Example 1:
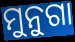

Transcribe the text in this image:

ମୁନୁଗା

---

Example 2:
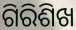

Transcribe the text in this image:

ଗିରିଶିଖ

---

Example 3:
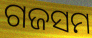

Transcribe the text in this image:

ଗଜସମ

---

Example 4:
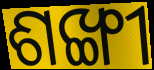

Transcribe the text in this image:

ଶଙ୍ଖୀ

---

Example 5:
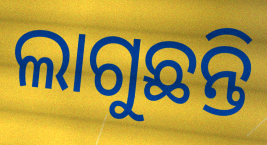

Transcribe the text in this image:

ଲାଗୁଛନ୍ତି